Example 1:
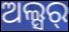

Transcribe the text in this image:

ଅଲ୍ସର୍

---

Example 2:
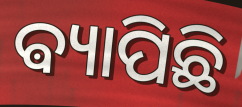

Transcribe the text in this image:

ଵ୍ୟାପିଛି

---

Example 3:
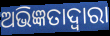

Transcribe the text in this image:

ଅଭିଜ୍ଞତାଦ୍ଵାରା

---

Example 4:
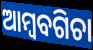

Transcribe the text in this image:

ଆମ୍ବବଗିଚା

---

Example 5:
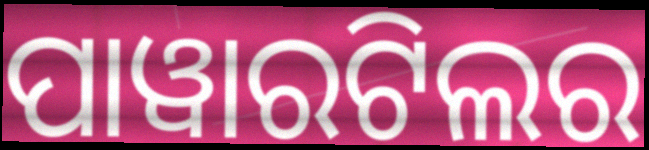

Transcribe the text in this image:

ପାୱାରଟିଲର